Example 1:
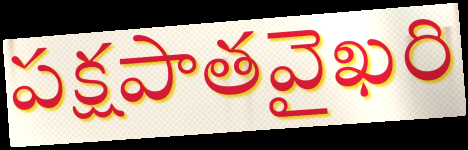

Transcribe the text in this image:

పక్షపాతవైఖరి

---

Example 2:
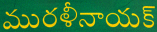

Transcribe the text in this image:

మురళీనాయక్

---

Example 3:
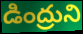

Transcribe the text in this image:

డింద్రుని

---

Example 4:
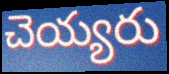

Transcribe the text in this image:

చెయ్యరు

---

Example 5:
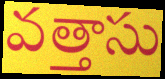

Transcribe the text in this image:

వత్తాసు